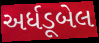
અર્ધડૂબેલ